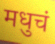
मधुचं